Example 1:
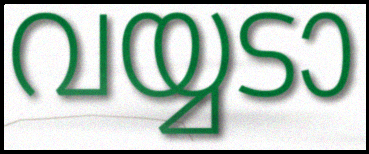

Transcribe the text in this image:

വയ്യടാ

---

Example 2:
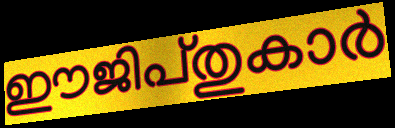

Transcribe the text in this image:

ഈജിപ്തുകാർ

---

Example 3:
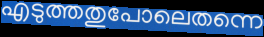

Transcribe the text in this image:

എടുത്തതുപോലെതന്നെ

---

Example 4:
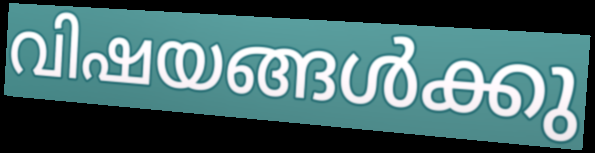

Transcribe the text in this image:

വിഷയങ്ങൾക്കു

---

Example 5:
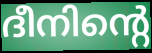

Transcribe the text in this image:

ദീനിന്റെ